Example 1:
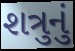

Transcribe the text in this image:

શત્રુનું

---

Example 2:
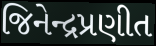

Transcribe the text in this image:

જિનેન્દ્રપ્રણીત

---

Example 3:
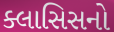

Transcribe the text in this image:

ક્લાસિસનો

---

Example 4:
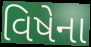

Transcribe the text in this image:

વિષેના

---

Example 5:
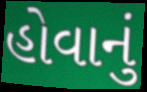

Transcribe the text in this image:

હોવાનું